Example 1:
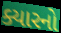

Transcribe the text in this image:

ક્યારનો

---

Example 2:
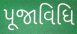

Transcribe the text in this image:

પૂજાવિધિ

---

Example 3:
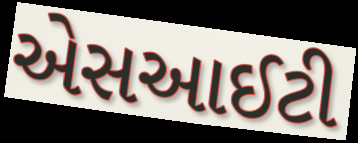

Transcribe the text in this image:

એસઆઈટી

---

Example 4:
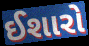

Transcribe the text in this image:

ઈશારો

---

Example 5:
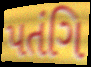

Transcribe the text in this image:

પતંગિ